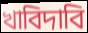
খাবিদাবি